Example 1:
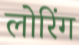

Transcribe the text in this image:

लोरिंग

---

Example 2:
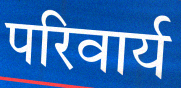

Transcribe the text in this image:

परिवार्य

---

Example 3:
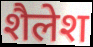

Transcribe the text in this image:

शैलेश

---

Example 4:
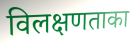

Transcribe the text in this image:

विलक्षणताका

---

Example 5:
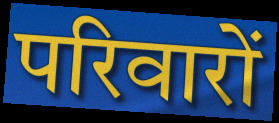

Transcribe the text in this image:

परिवारों